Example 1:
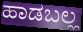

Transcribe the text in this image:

ಹಾಡಬಲ್ಲ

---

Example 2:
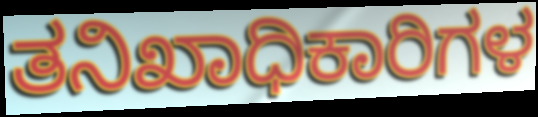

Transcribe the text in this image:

ತನಿಖಾಧಿಕಾರಿಗಳ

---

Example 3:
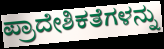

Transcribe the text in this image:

ಪ್ರಾದೇಶಿಕತೆಗಳನ್ನು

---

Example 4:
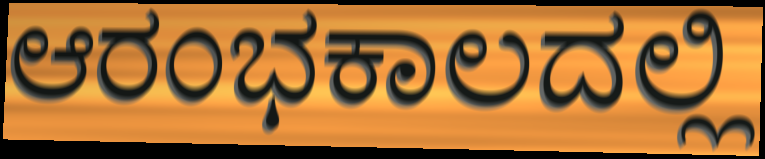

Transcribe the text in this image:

ಆರಂಭಕಾಲದಲ್ಲಿ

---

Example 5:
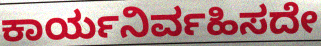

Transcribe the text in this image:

ಕಾರ್ಯನಿರ್ವಹಿಸದೇ